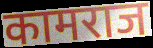
कामराज